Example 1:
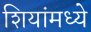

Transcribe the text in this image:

शियांमध्ये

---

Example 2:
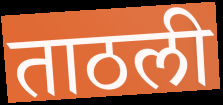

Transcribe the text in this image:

ताठली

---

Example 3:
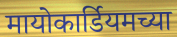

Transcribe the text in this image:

मायोकार्डियमच्या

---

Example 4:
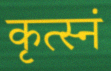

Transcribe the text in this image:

कृत्स्नं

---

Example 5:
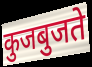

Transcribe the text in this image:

कुजबुजते